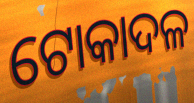
ଟୋକାଦଳ